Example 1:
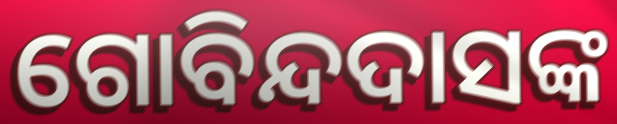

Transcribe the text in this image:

ଗୋବିନ୍ଦଦାସଙ୍କ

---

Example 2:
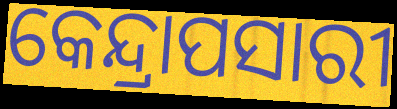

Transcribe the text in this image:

କେନ୍ଦ୍ରାପସାରୀ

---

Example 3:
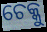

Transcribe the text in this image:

ଚେକ୍କୁ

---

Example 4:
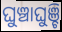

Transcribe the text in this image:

ଘୁଞ୍ଚାଘୁଞ୍ଚି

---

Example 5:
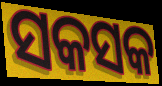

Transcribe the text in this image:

ସକସକ